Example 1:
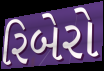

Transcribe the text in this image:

રિબેરો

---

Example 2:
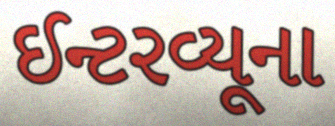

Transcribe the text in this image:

ઈન્ટરવ્યૂના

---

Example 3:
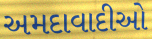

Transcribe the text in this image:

અમદાવાદીઓ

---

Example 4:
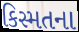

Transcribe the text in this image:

કિસ્મતના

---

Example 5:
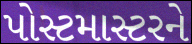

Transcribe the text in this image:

પોસ્ટમાસ્ટરને